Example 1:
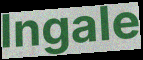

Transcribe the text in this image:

Ingale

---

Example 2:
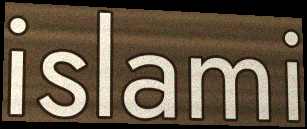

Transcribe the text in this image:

islami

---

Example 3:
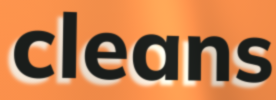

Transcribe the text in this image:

cleans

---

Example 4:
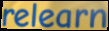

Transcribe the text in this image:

relearn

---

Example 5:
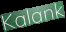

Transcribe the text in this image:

Kalank